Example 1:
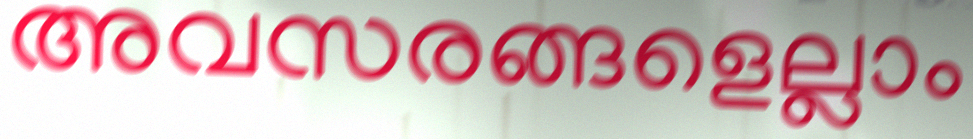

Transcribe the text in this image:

അവസരങ്ങളെല്ലാം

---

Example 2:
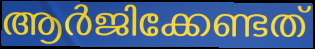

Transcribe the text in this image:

ആർജിക്കേണ്ടത്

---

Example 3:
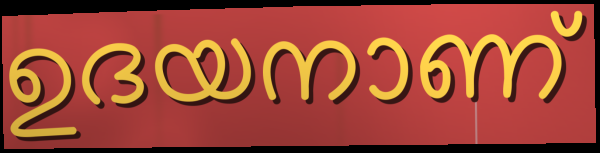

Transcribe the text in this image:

ഉദയനാണ്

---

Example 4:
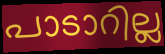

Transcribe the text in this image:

പാടാറില്ല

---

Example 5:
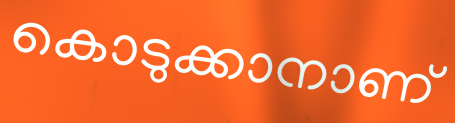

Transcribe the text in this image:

കൊടുക്കാനാണ്